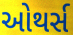
ઓથર્સ